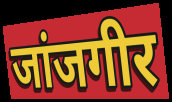
जांजगीर